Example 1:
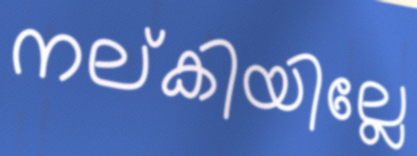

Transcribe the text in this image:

നല്കിയില്ലേ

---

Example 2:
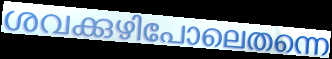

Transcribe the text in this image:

ശവക്കുഴിപോലെതന്നെ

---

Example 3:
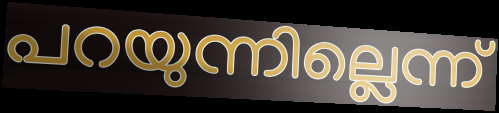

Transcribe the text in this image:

പറയുന്നില്ലെന്ന്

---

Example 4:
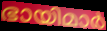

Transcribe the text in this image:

ഭായിമാർ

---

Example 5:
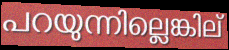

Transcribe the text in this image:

പറയുന്നില്ലെങ്കില്